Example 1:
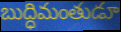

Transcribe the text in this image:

బుద్ధిమంతుడూ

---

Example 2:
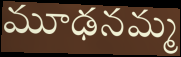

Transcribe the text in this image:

మూఢనమ్మ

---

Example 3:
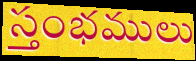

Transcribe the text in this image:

స్తంభములు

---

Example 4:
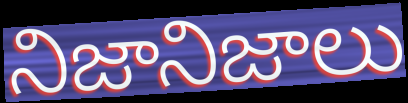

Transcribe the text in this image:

నిజానిజాలు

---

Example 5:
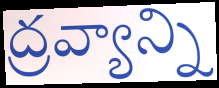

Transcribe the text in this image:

ద్రవ్యాన్ని